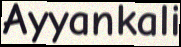
Ayyankali